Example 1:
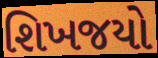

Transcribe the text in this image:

શિખજયો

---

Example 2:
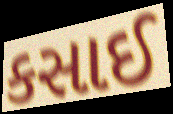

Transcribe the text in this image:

કસાઈ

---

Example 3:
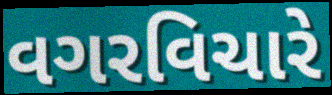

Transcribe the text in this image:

વગરવિચારે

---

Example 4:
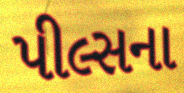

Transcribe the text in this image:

પીલ્સના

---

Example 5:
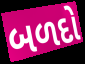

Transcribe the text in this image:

બળદો